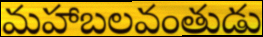
మహాబలవంతుడు